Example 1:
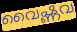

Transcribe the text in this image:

വൈഷ്ണവ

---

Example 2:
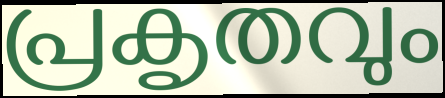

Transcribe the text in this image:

പ്രകൃതവും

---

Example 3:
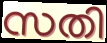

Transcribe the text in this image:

സതി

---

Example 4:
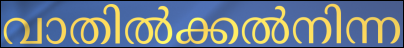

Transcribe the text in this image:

വാതിൽക്കൽനിന്ന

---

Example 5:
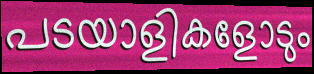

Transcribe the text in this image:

പടയാളികളോടും